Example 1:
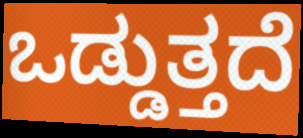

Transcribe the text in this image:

ಒಡ್ಡುತ್ತದೆ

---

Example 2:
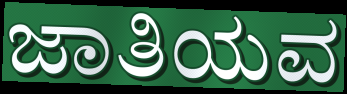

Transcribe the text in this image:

ಜಾತಿಯವ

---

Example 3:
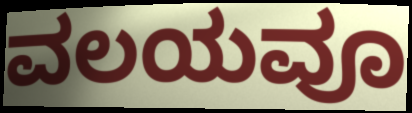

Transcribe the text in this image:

ವಲಯವೂ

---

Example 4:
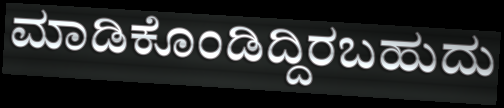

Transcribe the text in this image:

ಮಾಡಿಕೊಂಡಿದ್ದಿರಬಹುದು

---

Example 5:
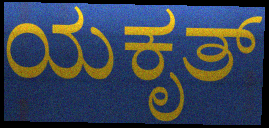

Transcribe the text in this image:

ಯಕೃತ್